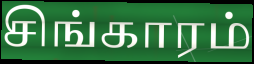
சிங்காரம்